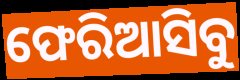
ଫେରିଆସିବୁ